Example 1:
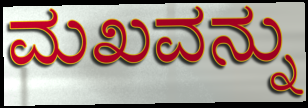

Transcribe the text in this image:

ಮಖವನ್ನು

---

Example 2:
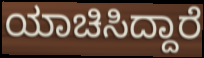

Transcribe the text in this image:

ಯಾಚಿಸಿದ್ದಾರೆ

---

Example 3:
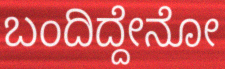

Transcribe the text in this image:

ಬಂದಿದ್ದೇನೋ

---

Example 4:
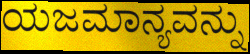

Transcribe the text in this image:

ಯಜಮಾನ್ಯವನ್ನು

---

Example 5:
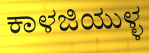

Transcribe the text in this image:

ಕಾಳಜಿಯುಳ್ಳ